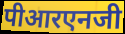
पीआरएनजी